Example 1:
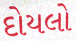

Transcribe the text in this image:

દોયલો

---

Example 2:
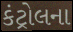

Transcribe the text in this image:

કંટ્રોલના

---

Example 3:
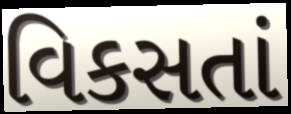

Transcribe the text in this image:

વિકસતાં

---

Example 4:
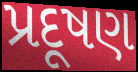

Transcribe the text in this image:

પ્રદૂષણ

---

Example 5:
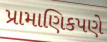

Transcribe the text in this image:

પ્રામાણિકપણે